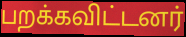
பறக்கவிட்டனர்